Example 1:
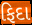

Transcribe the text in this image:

ફિદા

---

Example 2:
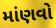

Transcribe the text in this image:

માંણવો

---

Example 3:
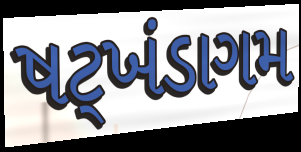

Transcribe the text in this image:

ષટ્ખંડાગમ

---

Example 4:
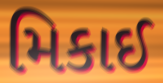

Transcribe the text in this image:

મિકાઈ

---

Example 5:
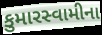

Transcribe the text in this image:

કુમારસ્વામીના